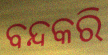
ବନ୍ଦକରି